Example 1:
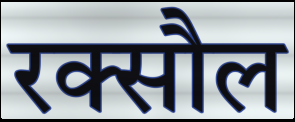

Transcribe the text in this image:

रक्‍सौल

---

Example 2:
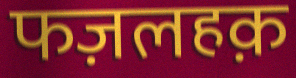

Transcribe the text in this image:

फज़लहक़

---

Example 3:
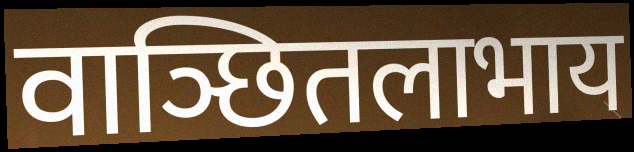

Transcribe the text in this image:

वाञ्छितलाभाय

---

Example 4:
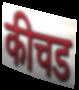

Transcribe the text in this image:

कीचड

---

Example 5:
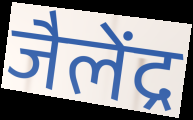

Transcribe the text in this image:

जैलेंद्र